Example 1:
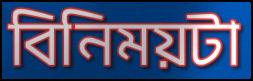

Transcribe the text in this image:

বিনিময়টা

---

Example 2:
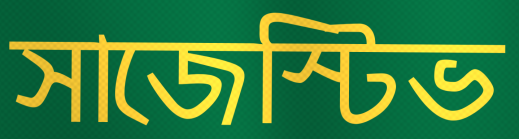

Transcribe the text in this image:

সাজেস্টিভ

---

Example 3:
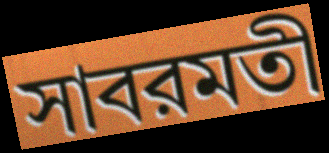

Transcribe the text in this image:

সাবরমতী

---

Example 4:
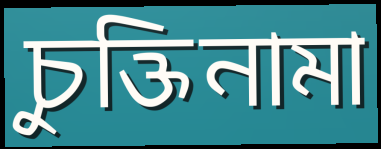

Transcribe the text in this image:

চুক্তিনামা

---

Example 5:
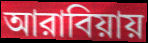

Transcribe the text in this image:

আরাবিয়ায়